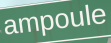
ampoule